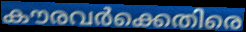
കൗരവർക്കെതിരെ